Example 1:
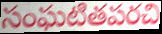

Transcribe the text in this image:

సంఘటితపరచి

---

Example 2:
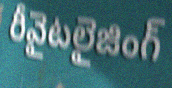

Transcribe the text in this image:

రీవైటలైజింగ్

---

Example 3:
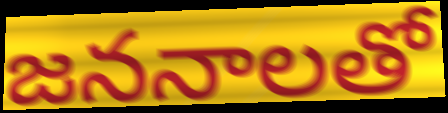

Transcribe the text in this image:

జననాలతో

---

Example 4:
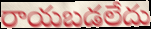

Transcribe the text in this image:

రాయబడలేదు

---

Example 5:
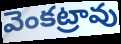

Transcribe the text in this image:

వెంకట్రావు